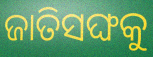
ଜାତିସଙ୍ଘକୁ